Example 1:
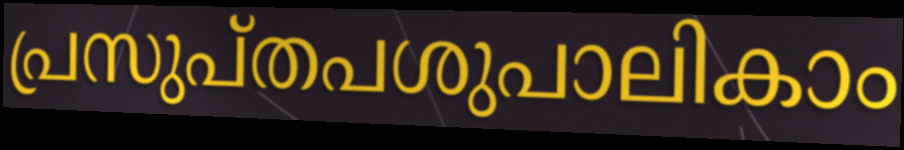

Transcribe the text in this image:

പ്രസുപ്തപശുപാലികാം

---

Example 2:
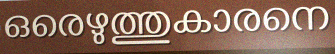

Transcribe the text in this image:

ഒരെഴുത്തുകാരനെ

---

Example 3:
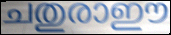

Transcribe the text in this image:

ചതുരാഈ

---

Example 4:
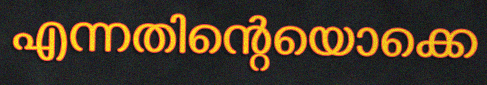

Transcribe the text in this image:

എന്നതിന്റെയൊക്കെ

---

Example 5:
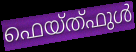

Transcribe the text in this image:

ഫെയ്ത്ഫുൾ